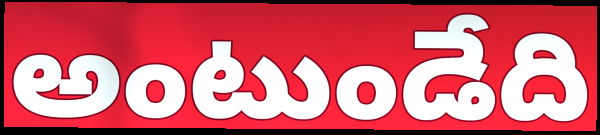
అంటుండేది